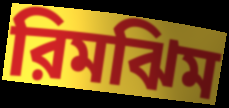
রিমঝিম